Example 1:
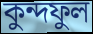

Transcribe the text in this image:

কুন্দফুল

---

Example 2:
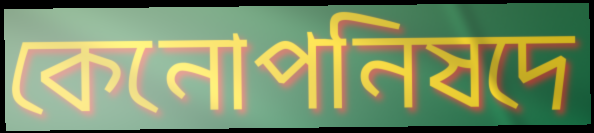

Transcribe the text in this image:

কেনোপনিষদে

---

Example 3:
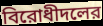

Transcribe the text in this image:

বিরোধীদলের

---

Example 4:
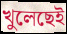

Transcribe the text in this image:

খুলেছেই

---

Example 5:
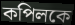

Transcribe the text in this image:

কপিলকে